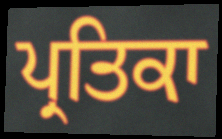
ਪ੍ਰਤਿਕਾ